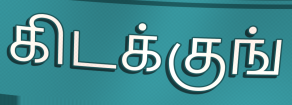
கிடக்குங்